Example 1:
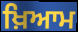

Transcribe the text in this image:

ਖ਼ਿਆਮ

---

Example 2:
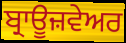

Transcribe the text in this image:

ਬ੍ਰਾਊਜ਼ਵੇਅਰ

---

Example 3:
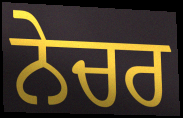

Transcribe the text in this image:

ਨੇਚਰ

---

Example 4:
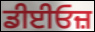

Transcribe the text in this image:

ਡੀਈਓਜ਼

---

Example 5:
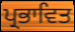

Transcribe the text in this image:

ਪ੍ਰਭਾਵਿਤ